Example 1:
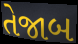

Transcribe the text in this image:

તેજાબ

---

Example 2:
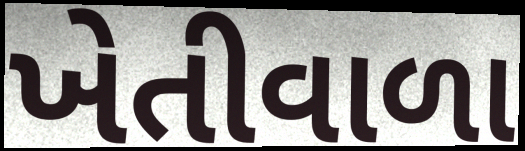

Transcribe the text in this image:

ખેતીવાળા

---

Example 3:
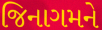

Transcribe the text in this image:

જિનાગમને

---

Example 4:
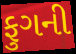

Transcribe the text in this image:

ફુગની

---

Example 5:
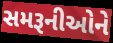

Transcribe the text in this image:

સમરૂનીઓને